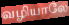
வழியாலே